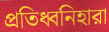
প্রতিধ্বনিহারা